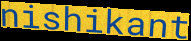
nishikant